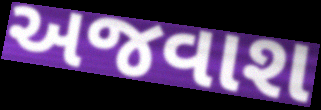
અજવાશ